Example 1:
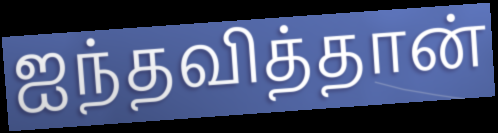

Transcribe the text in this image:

ஐந்தவித்தான்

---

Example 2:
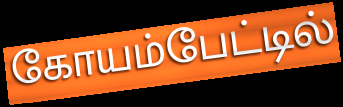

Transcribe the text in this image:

கோயம்பேட்டில்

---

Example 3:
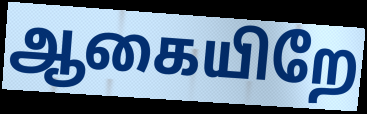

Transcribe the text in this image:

ஆகையிறே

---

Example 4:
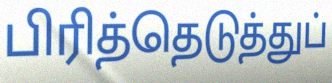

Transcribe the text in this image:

பிரித்தெடுத்துப்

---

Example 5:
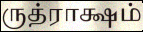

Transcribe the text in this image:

ருத்ராக்ஷம்